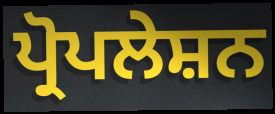
ਪ੍ਰੋਪਲੇਸ਼ਨ